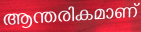
ആന്തരികമാണ്